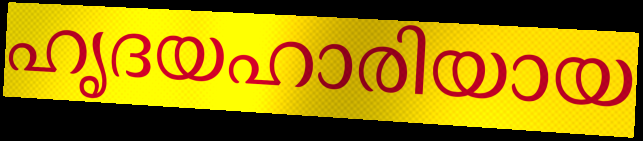
ഹൃദയഹാരിയായ